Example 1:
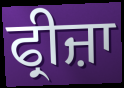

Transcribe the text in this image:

ਫ੍ਰੀਜ਼ਾ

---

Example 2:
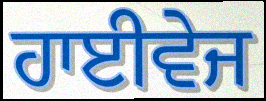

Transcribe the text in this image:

ਹਾਈਵੇਜ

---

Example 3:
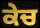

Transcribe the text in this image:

ਕੇਚ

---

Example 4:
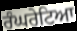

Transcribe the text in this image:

ਰੰਘਰੇਟਿਆ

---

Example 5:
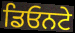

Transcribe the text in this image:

ਡਿਓਨਟੇ